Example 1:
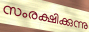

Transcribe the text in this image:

സംരക്ഷിക്കുന്നു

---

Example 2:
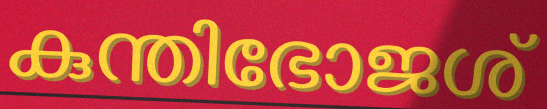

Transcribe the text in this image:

കുന്തിഭോജശ്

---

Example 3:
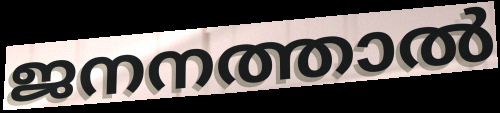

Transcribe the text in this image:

ജനനത്താൽ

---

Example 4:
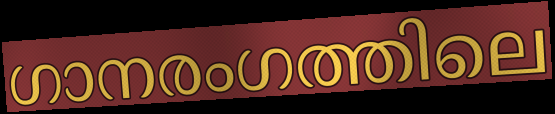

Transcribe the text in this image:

ഗാനരംഗത്തിലെ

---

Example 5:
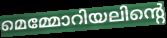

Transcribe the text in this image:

മെമ്മോറിയലിന്റെ